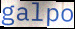
galpo